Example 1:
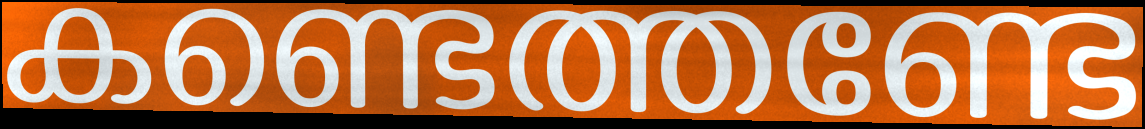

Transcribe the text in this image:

കണ്ടെത്തണ്ടേ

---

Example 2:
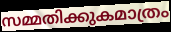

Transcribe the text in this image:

സമ്മതിക്കുകമാത്രം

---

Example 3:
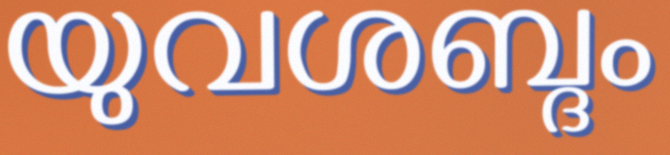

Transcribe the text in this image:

യുവശബ്ദം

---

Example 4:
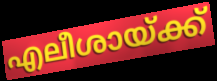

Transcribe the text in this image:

എലീശായ്ക്ക്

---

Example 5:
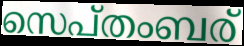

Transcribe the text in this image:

സെപ്തംബര്